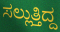
ಸಲ್ಲುತ್ತಿದ್ದ